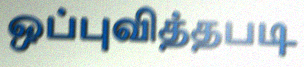
ஒப்புவித்தபடி